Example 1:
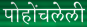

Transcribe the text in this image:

पोहोंचलेली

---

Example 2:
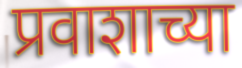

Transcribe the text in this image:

प्रवाशाच्या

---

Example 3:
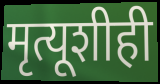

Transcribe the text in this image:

मृत्यूशीही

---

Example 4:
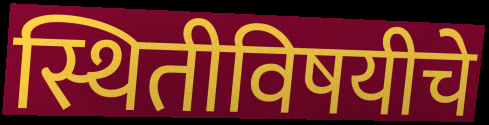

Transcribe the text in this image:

स्थितीविषयीचे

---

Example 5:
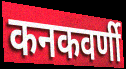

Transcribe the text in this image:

कनकवर्णी